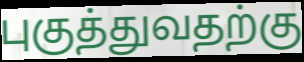
புகுத்துவதற்கு